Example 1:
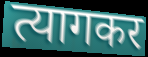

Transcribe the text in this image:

त्यागकर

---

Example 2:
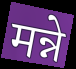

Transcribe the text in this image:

मन्ने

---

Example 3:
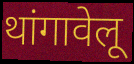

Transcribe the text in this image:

थांगावेलू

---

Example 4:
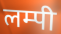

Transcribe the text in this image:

लम्पी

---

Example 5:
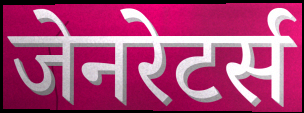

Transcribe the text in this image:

जेनरेटर्स